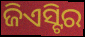
ଜିଏସ୍ଟିର